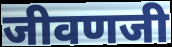
जीवणजी